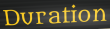
Duration